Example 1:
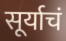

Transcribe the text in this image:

सूर्याचं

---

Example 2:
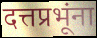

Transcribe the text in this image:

दत्तप्रभूंना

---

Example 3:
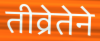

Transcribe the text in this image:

तीव्रेतेने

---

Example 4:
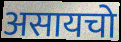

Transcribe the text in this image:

असायचो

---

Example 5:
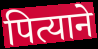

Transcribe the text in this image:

पित्याने